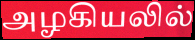
அழகியலில்